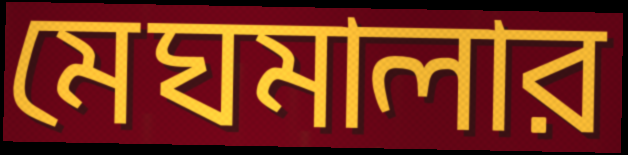
মেঘমালার